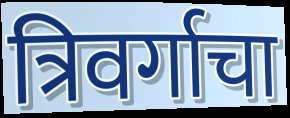
त्रिवर्गाचा